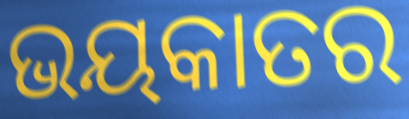
ଭୟକାତର